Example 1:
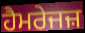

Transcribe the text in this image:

ਹੈਮਰੇਜਜ਼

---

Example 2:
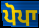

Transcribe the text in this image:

ਪੋਪਾ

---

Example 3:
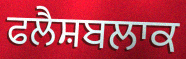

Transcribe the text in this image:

ਫਲੈਸ਼ਬਲਾਕ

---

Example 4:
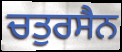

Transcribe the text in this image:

ਚਤੁਰਸੈਨ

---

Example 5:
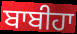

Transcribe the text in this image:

ਬਾਬੀਹਾ